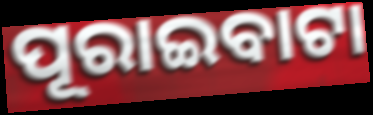
ପୂରାଇବାଟା